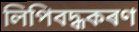
লিপিবদ্ধকৰণ